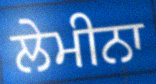
ਲੇਮੀਨਾ